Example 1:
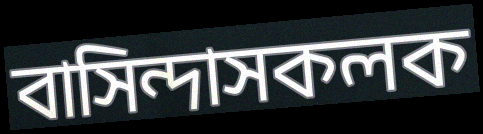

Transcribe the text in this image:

বাসিন্দাসকলক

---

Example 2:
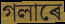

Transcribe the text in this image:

গলাৰে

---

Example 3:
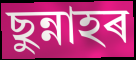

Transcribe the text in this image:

ছুন্নাহৰ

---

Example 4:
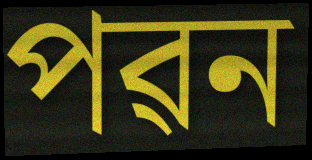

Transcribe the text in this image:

পৱন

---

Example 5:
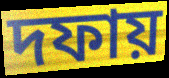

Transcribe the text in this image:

দফায়